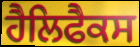
ਹੈਲਿਫੈਕਸ